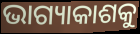
ଭାଗ୍ୟାକାଶକୁ